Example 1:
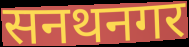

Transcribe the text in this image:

सनथनगर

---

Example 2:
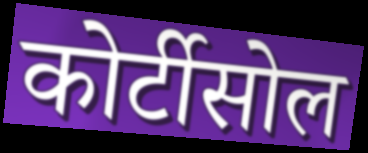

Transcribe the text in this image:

कोर्टीसोल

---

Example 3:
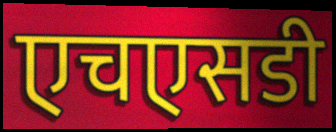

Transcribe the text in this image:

एचएसडी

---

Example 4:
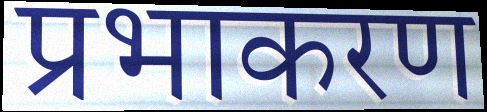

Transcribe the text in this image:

प्रभाकरण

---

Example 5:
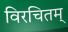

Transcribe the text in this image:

विरचितम्